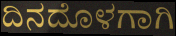
ದಿನದೊಳಗಾಗಿ